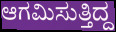
ಆಗಮಿಸುತ್ತಿದ್ದ